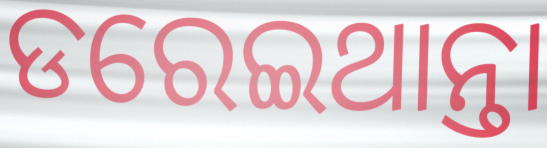
ଡରେଇଥାନ୍ତା